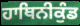
ਹਾਥਿਨੀਕੁੰਡ